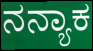
ನನ್ಯಾಕ